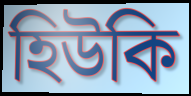
হিউকি